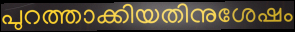
പുറത്താക്കിയതിനുശേഷം